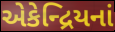
એકેન્દ્રિયનાં